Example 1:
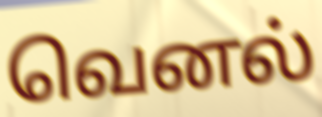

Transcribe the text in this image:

வெனல்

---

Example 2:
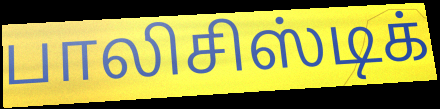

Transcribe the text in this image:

பாலிசிஸ்டிக்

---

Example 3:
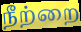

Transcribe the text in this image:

நீற்றை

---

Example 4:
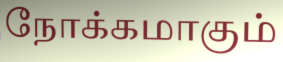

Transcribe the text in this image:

நோக்கமாகும்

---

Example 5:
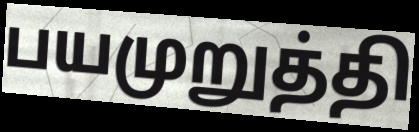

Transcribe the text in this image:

பயமுறுத்தி